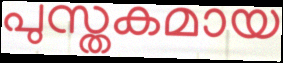
പുസ്തകമായ